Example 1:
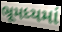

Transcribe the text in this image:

ભ્રૂમધ્યમાં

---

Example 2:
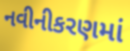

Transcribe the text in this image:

નવીનીકરણમાં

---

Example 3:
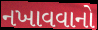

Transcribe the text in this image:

નખાવવાનો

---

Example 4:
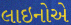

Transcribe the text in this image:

લાઇનોએ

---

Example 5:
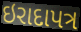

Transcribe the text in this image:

ઇરાદાપત્ર